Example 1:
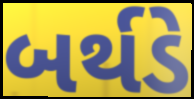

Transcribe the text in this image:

બર્થડે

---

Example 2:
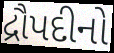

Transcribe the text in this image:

દ્રૌપદીનો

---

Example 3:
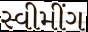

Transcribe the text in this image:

સ્વીમીંગ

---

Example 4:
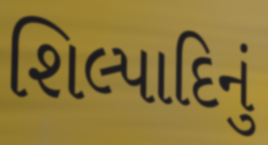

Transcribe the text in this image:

શિલ્પાદિનું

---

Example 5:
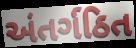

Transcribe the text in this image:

અંતર્ગઠિત